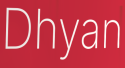
Dhyan